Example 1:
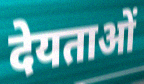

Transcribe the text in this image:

देयताओं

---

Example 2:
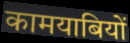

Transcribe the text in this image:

कामयाबियों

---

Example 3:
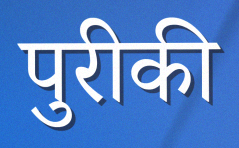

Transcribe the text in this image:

पुरीकी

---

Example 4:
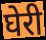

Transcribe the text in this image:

घेरी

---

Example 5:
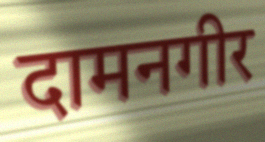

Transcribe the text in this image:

दामनगीर